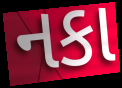
નકા